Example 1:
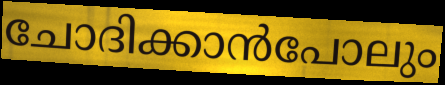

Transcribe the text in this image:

ചോദിക്കാൻപോലും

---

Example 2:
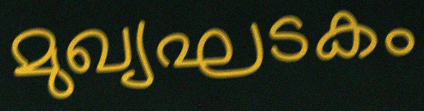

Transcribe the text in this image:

മുഖ്യഘടകം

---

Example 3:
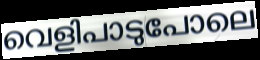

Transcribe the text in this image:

വെളിപാടുപോലെ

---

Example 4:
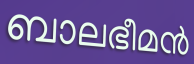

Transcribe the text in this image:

ബാലഭീമൻ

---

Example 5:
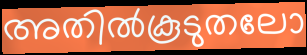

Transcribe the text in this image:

അതിൽകൂടുതലോ